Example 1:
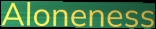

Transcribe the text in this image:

Aloneness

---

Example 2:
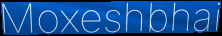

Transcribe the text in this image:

Moxeshbhai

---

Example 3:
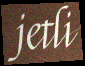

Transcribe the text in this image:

jetli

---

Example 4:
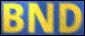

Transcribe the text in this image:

BND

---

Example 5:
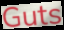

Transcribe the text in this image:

Guts